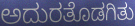
ಅದುರತೊಡಗಿತು